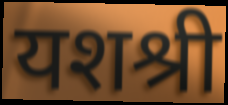
यशश्री